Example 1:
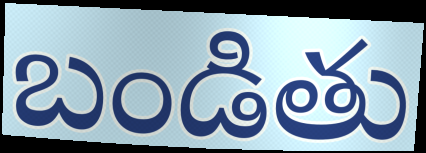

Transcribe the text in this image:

బండితు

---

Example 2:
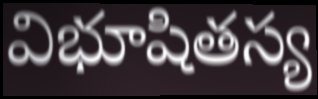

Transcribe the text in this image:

విభూషితస్య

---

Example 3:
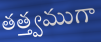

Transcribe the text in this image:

తత్త్వముగా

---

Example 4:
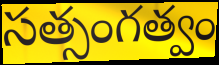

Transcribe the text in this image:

సత్సంగత్వం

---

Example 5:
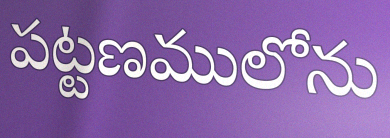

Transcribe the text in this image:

పట్టణములోను